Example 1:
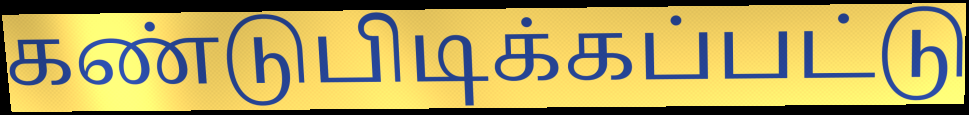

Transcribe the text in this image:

கண்டுபிடிக்கப்பட்டு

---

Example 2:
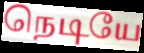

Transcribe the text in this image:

நெடியே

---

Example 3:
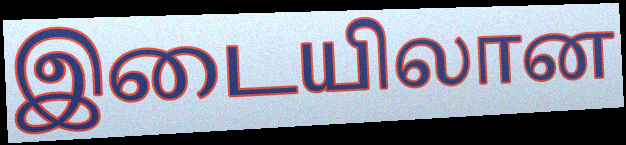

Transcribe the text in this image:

இடையிலான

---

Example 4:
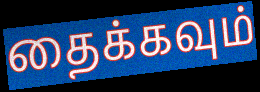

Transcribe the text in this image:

தைக்கவும்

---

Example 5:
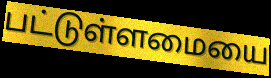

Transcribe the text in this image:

பட்டுள்ளமையை